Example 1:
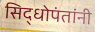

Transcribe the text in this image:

सिद्धोपंतांनी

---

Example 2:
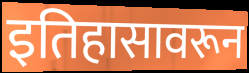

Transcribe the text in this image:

इतिहासावरून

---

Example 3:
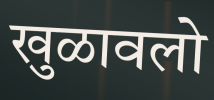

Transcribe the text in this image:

खुळावलो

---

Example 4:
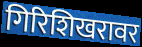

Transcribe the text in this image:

गिरिशिखरावर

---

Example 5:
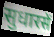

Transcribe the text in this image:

सुधारसें